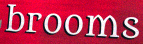
brooms